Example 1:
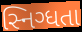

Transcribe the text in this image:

સ્નિગ્ધતા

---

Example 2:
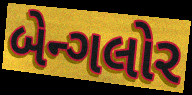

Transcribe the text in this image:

બેન્ગલોર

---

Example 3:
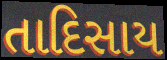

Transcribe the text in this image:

તાદિસાય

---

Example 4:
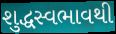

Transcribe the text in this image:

શુદ્ધસ્વભાવથી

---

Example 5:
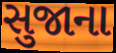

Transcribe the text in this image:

સુજાના